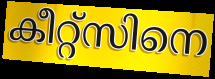
കീറ്റ്സിനെ